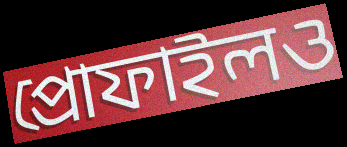
প্রোফাইলও